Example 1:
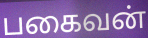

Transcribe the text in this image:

பகைவன்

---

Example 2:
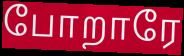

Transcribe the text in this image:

போறாரே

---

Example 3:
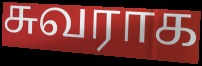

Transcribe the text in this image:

சுவராக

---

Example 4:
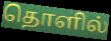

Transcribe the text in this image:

தொளில்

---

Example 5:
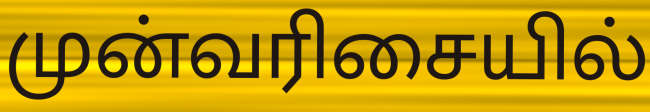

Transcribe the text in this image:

முன்வரிசையில்